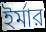
ইর্মার